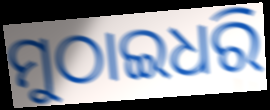
ମୁଠାଇଧରି